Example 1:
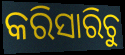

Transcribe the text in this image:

କରିସାରିଚୁ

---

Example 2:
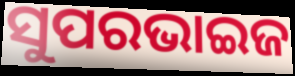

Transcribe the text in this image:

ସୁପରଭାଇଜ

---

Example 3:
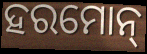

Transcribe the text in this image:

ହରମୋନ୍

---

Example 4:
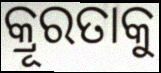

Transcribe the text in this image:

କ୍ରୂରତାକୁ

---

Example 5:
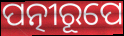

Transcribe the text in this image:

ପତ୍ନୀରୂପେ